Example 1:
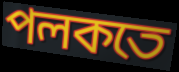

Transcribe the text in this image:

পলকতে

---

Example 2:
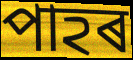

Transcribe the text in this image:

পাহৰ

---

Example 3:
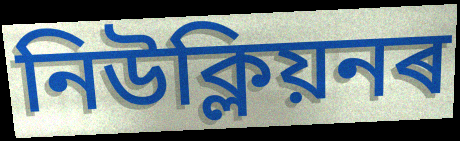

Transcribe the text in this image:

নিউক্লিয়নৰ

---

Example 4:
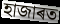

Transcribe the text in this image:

হাজাৰত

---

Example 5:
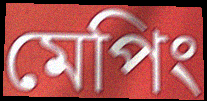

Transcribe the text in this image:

মেপিং